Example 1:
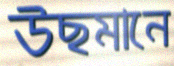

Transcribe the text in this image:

উছমানে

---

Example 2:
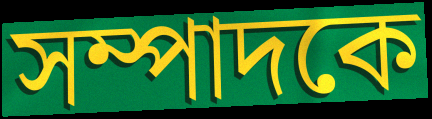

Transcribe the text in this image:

সম্পাদকে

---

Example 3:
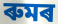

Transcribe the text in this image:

ৰুমৰ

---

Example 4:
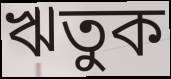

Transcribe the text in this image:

ঋতুক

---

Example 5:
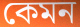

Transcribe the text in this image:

কেমন